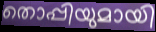
തൊപ്പിയുമായി